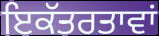
ਇਕੱਤਰਤਾਵਾਂ